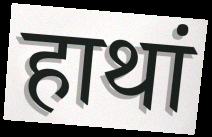
हाथां